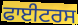
ਫਾਈਟਰਸ